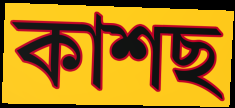
কাশছ